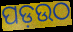
ପଡ଼ଉଠ